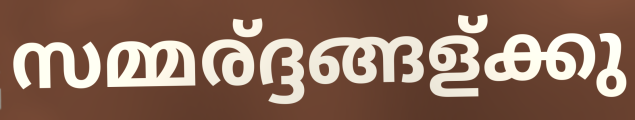
സമ്മര്ദ്ദങ്ങള്ക്കു